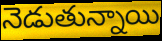
నెడుతున్నాయి